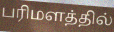
பரிமளத்தில்